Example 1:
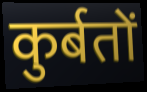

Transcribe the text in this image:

कुर्बतों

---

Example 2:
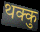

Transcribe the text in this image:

थक्कु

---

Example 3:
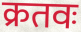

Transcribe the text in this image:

क्रतवः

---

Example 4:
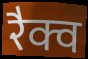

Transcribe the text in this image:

रैक्व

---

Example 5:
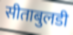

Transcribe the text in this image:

सीताबुलडी